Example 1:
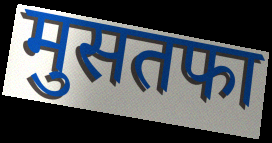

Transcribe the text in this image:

मुसतफा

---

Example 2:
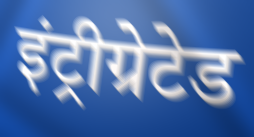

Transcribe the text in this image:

इंट्रीग्रेटेड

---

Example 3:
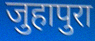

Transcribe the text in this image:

जुहापुरा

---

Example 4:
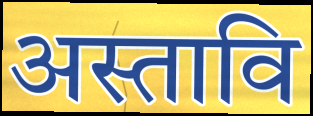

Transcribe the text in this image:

अस्तावि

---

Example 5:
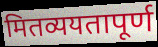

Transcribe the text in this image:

मितव्ययतापूर्ण